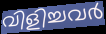
വിളിച്ചവർ